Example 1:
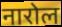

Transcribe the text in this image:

नारोल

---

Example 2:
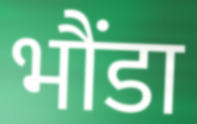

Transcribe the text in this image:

भौंडा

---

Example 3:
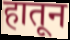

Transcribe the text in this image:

हातून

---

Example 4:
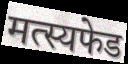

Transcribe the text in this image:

मत्स्यफेड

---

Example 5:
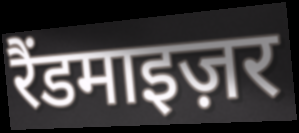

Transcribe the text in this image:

रैंडमाइज़र